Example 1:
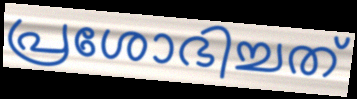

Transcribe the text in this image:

പ്രശോഭിച്ചത്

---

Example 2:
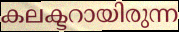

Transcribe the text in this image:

കലക്ടറായിരുന്ന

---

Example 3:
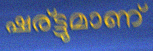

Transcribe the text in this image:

ഷര്ട്ടുമാണ്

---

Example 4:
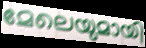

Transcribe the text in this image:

മേലെയുമായി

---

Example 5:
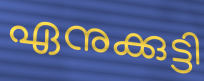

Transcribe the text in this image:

ഏനുക്കുട്ടി